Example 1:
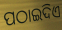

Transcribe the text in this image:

ପଠାଇଦିଏ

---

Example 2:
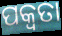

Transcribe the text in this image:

ପକ୍ୱତା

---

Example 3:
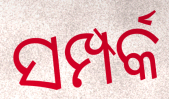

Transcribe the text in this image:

ସମ୍ପର୍କ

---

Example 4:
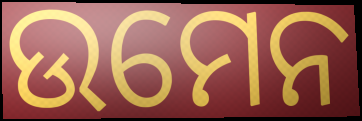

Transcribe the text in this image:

ଉମେନ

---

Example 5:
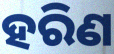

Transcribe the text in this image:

ହରିଣ